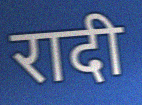
रादी